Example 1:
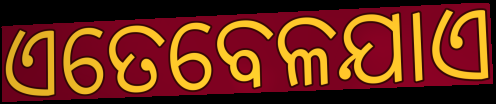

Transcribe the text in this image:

ଏତେବେଳଯାଏ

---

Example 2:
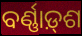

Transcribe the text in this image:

ବର୍ଣ୍ଣାଡ଼୍‌ଶ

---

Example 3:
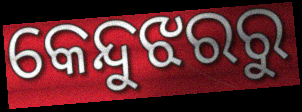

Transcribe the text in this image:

କେନ୍ଦୁଝରରୁ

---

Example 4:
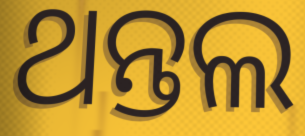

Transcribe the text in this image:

ଥନ୍ତଲ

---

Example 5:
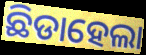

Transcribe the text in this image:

ଛିଡାହେଲା